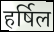
हर्षिल